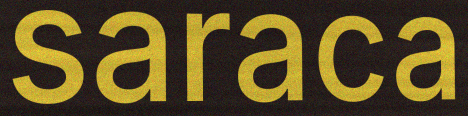
saraca